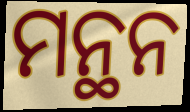
ମନ୍ଥନ